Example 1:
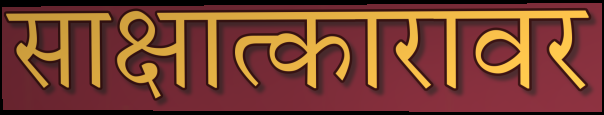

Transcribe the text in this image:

साक्षात्कारावर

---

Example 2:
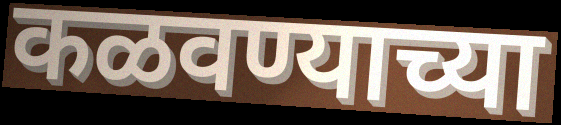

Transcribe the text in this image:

कळवण्याच्या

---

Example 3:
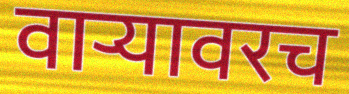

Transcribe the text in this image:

वाऱ्यावरच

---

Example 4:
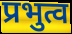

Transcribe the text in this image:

प्रभुत्व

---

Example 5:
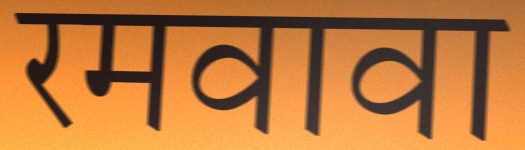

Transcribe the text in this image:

रमवावा